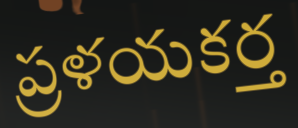
ప్రళయకర్త